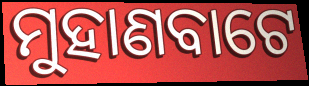
ମୁହାଣବାଟେ